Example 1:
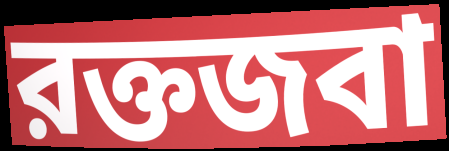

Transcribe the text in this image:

রক্তজবা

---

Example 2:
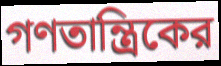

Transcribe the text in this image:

গণতান্ত্রিকের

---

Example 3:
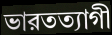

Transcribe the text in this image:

ভারতত্যাগী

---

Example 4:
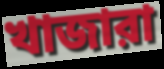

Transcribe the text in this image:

খাজারা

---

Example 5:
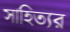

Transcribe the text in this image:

সাহিত্যর